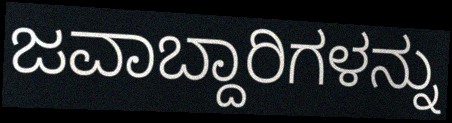
ಜವಾಬ್ದಾರಿಗಳನ್ನು